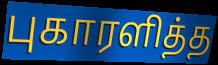
புகாரளித்த